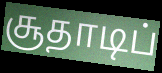
சூதாடிப்